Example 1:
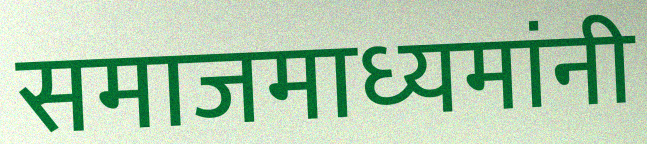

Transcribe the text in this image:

समाजमाध्यमांनी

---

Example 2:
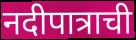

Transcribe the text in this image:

नदीपात्राची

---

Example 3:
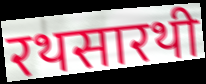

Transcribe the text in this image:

रथसारथी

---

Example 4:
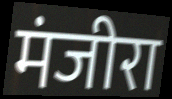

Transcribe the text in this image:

मंजीरा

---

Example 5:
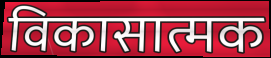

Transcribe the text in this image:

विकासात्मक